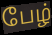
பேழ்